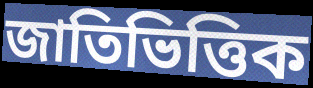
জাতিভিত্তিক